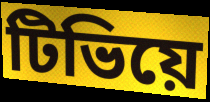
টিভিয়ে